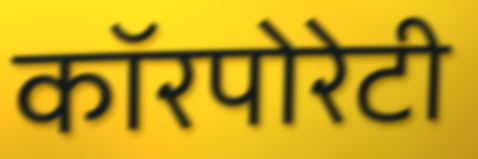
कॉरपोरेटी